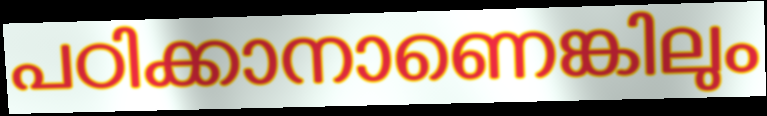
പഠിക്കാനാണെങ്കിലും